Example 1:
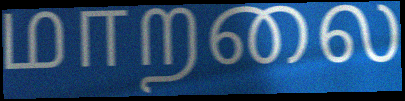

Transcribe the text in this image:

மாறலை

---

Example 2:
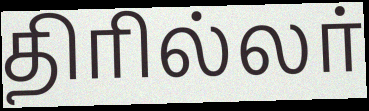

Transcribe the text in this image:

திரில்லர்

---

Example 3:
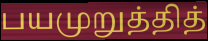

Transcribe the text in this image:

பயமுறுத்தித்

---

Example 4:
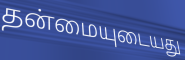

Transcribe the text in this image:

தன்மையுடையது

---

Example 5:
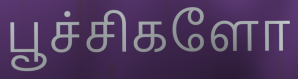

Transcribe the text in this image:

பூச்சிகளோ